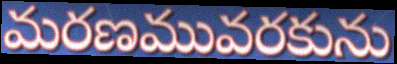
మరణమువరకును